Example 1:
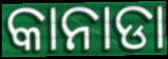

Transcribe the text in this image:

କାନାଡା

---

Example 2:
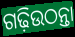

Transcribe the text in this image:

ଗଢ଼ିଉଠନ୍ତା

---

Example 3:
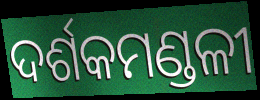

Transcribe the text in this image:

ଦର୍ଶକମଣ୍ଡଳୀ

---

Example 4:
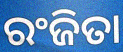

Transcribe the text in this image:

ରଂଜିତା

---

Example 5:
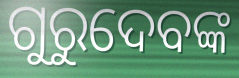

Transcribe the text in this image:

ଗୁରୁଦେବଙ୍କ